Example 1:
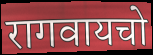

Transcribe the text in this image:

रागवायचो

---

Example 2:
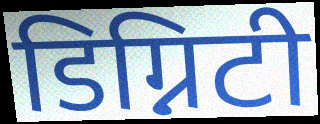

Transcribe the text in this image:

डिग्निटी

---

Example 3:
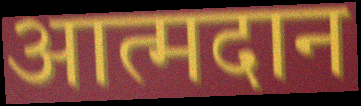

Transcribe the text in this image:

आत्मदान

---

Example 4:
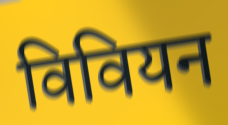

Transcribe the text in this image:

विवियन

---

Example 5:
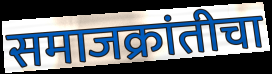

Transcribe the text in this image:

समाजक्रांतीचा